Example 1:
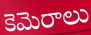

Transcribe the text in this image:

కెమెరాలు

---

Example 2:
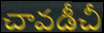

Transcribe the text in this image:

చావడీచీ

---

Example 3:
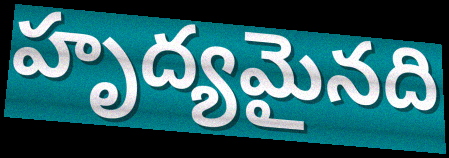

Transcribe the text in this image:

హృద్యమైనది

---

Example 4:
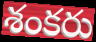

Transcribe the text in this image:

శంకరు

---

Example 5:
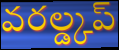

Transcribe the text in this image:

వరల్డ్కప్